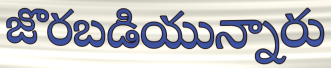
జొరబడియున్నారు